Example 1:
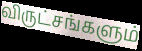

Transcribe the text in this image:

விருட்சங்களும்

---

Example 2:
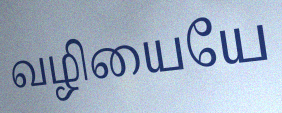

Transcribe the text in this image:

வழியையே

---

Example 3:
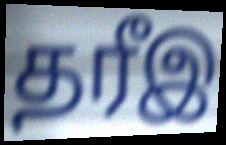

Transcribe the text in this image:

தரீஇ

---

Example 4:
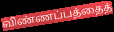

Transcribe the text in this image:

விண்ணப்பத்தைத்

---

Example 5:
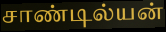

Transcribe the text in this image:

சாண்டில்யன்